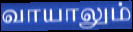
வாயாலும்